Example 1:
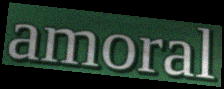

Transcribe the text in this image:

amoral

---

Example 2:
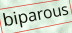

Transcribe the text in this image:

biparous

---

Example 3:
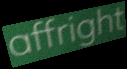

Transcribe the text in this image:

affright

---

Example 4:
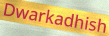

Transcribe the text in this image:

Dwarkadhish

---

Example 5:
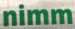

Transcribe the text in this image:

nimm